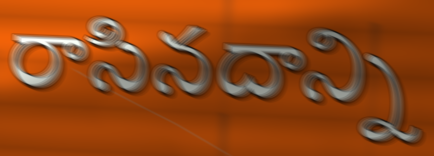
రాసినదాన్ని